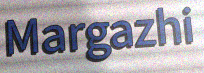
Margazhi